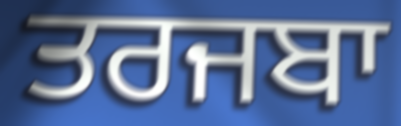
ਤਰਜਬਾ